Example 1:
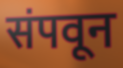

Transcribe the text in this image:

संपवून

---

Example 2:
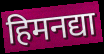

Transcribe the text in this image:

हिमनद्या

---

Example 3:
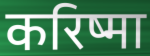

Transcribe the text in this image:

करिष्मा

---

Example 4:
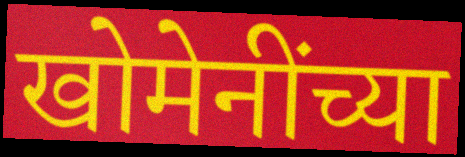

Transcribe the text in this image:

खोमेनींच्या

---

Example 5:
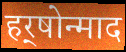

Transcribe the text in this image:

हर्षोन्माद